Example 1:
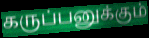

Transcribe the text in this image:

கருப்பனுக்கும்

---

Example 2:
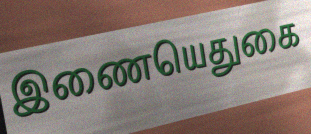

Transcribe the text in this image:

இணையெதுகை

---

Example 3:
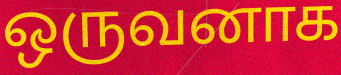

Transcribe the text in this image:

ஒருவனாக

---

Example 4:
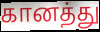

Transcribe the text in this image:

கானத்து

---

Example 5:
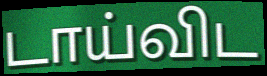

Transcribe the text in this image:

டாய்விட